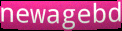
newagebd